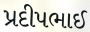
પ્રદીપભાઈ